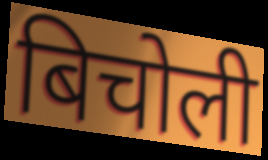
बिचोली